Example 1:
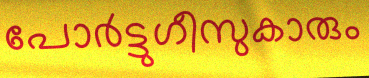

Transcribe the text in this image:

പോർട്ടുഗീസുകാരും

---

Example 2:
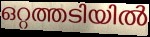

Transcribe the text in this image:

ഒറ്റത്തടിയിൽ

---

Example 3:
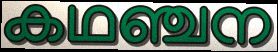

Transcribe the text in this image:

കഥഞ്ചന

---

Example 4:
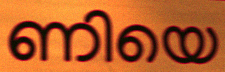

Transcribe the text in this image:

ണിയെ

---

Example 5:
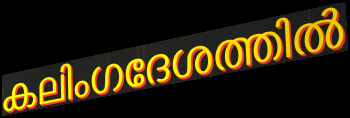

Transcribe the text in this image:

കലിംഗദേശത്തിൽ